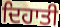
ਦਿਹਾਤੀ